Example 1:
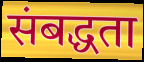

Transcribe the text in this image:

संबद्धता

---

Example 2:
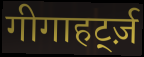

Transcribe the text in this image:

गीगाहर्ट्ज़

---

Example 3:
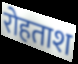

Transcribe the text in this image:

रोहताश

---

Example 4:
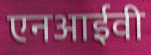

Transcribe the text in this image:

एनआईवी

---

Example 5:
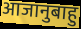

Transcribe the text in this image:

आजानुबाहु